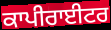
ਕਾਪੀਰਾਈਟਰ